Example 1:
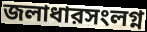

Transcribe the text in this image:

জলাধারসংলগ্ন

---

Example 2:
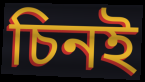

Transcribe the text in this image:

চিনই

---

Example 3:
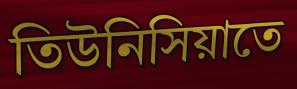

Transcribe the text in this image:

তিউনিসিয়াতে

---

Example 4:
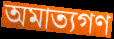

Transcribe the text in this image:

অমাত্যগণ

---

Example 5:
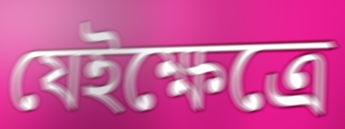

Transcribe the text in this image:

যেইক্ষেত্রে